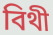
বিথী